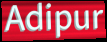
Adipur